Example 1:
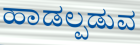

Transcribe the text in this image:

ಹಾಡಲ್ಪಡುವ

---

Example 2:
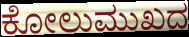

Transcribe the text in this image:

ಕೋಲುಮುಖದ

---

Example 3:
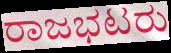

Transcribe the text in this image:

ರಾಜಭಟರು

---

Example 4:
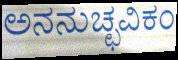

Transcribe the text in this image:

ಅನನುಚ್ಛವಿಕಂ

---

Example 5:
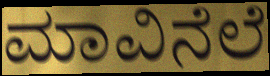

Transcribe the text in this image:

ಮಾವಿನೆಲೆ